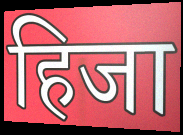
हिजा